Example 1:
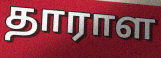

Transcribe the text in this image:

தாராள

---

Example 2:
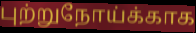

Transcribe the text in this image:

புற்றுநோய்க்காக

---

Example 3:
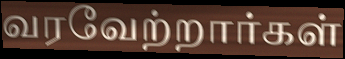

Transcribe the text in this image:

வரவேற்றார்கள்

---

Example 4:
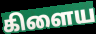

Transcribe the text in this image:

கிளைய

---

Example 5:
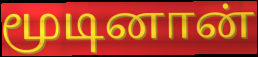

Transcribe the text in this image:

மூடினான்